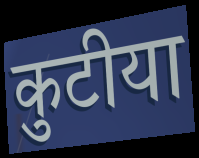
कुटीया